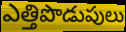
ఎత్తిపొడుపులు